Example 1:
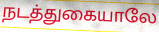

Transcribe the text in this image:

நடத்துகையாலே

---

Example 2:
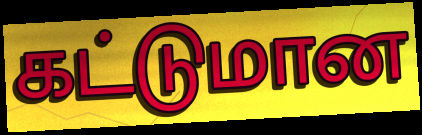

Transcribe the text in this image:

கட்டுமான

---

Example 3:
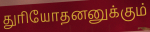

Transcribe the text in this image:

துரியோதனனுக்கும்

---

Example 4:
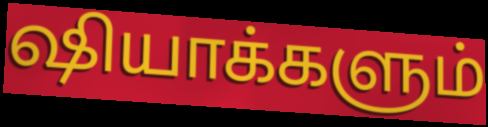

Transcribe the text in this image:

ஷியாக்களும்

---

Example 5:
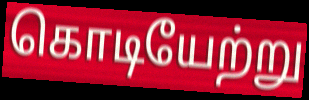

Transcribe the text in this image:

கொடியேற்று